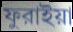
ফুরাইয়া